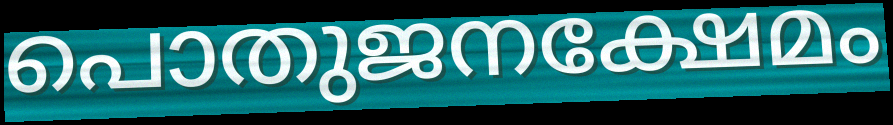
പൊതുജനക്ഷേമം